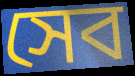
সেব